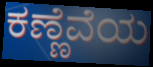
ಕಣ್ಣೆವೆಯ